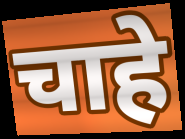
चाहे